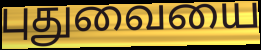
புதுவையை